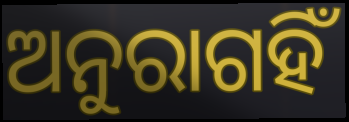
ଅନୁରାଗହିଁ